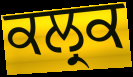
ਕਲ੍ਰਕ